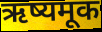
ऋष्यमूक